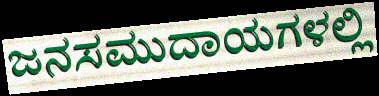
ಜನಸಮುದಾಯಗಳಲ್ಲಿ